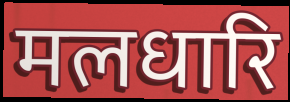
मलधारि